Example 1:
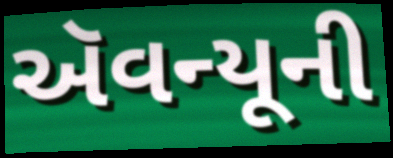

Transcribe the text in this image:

ઍવન્યૂની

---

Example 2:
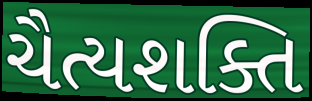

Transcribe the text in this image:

ચૈત્યશક્તિ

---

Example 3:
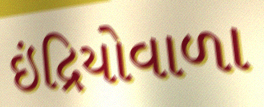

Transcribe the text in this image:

ઇંદ્રિયોવાળા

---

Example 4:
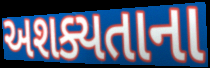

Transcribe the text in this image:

અશક્યતાના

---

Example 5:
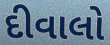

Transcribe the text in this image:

દીવાલો